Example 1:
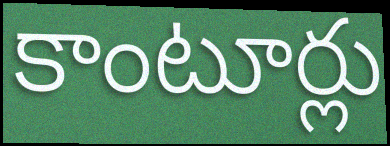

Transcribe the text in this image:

కాంటూర్లు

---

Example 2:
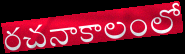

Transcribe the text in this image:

రచనాకాలంలో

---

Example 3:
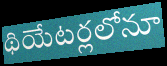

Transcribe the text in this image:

థియేటర్లలోనూ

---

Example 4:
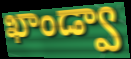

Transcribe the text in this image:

ఖాండ్వా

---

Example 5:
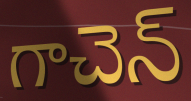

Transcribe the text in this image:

గాచెన్